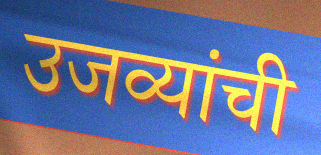
उजव्यांची